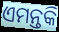
ଏମନ୍ତକି